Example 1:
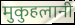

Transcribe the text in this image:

मुकुहलानी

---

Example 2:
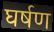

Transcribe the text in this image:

घर्षण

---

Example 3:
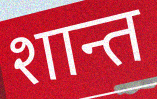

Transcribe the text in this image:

शान्त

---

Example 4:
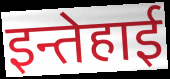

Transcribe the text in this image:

इन्तेहाई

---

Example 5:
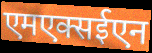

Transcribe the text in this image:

एमएक्सईएन